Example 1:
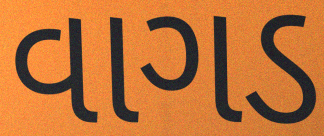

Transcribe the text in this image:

વાગડ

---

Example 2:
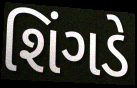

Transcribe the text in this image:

શિંગડે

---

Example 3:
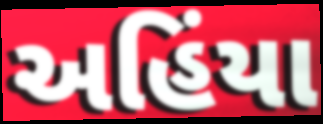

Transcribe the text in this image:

અહિંયા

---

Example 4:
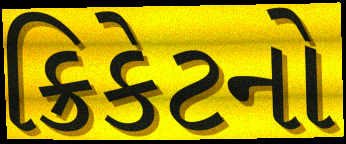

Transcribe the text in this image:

ક્રિકેટનો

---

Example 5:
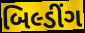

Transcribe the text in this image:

બિલ્ડીંગ